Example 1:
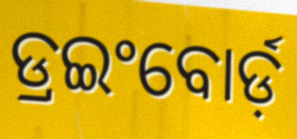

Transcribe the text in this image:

ଡ୍ରଇଂବୋର୍ଡ଼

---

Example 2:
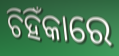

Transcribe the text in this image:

ଚିହିଁକାରେ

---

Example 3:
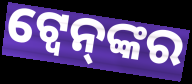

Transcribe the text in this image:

ଟ୍ୱେନ୍‌ଙ୍କର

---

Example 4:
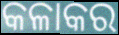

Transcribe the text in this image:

କଳାକର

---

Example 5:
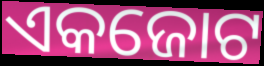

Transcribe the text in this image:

ଏକଜୋଟ